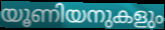
യൂണിയനുകളും